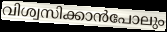
വിശ്വസിക്കാൻപോലും